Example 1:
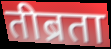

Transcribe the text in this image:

तीब्रता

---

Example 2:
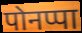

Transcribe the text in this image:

पोनप्‍पा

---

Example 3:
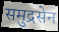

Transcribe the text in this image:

समुद्रसेन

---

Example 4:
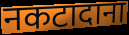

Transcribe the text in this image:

नकटादाना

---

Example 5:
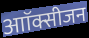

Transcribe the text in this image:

आॉक्सीजन